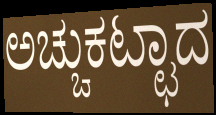
ಅಚ್ಚುಕಟ್ಟಾದ